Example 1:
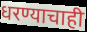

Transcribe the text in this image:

धरण्याचाही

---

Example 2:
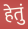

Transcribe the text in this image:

हेतुं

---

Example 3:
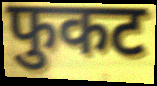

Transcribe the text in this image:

फुकट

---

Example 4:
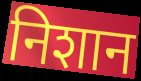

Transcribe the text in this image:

निशान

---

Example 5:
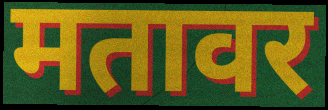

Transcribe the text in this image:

मतावर